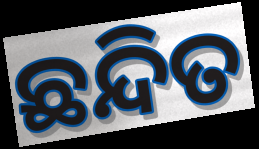
ଛନ୍ଦିତ